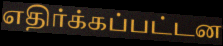
எதிர்க்கப்பட்டன